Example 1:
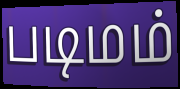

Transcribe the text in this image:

படிமம்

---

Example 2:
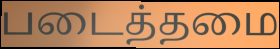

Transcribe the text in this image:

படைத்தமை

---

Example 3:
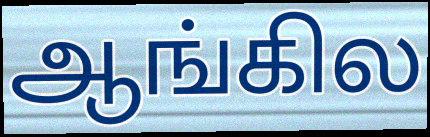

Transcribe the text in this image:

ஆங்கில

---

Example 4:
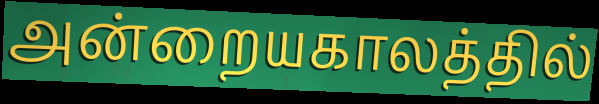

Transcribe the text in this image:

அன்றையகாலத்தில்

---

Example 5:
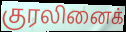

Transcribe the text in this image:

குரலினைக்